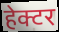
हेक्टर